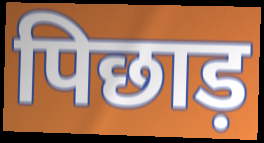
पिछाड़